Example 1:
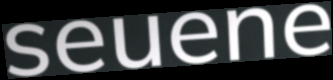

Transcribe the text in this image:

seuene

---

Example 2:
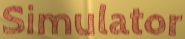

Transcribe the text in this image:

Simulator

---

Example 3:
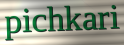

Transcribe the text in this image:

pichkari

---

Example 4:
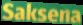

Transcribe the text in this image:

Saksena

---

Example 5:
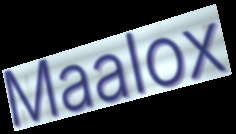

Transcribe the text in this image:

Maalox